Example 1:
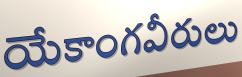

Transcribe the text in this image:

యేకాంగవీరులు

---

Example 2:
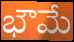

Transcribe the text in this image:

భౌమే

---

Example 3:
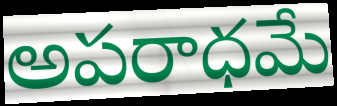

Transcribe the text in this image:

అపరాధమే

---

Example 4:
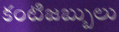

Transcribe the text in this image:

కంటిజబ్బులు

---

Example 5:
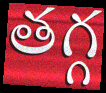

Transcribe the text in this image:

తగ్గ